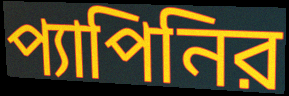
প্যাপিনির